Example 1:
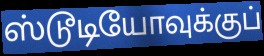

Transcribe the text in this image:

ஸ்டூடியோவுக்குப்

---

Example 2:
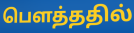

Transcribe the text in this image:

பௌத்ததில்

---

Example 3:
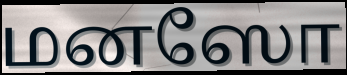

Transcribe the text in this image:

மனஸோ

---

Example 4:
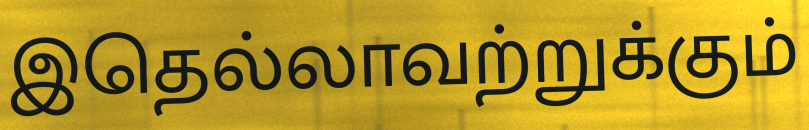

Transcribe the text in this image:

இதெல்லாவற்றுக்கும்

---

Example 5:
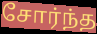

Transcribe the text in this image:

சோர்ந்த